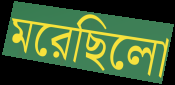
মরেছিলো